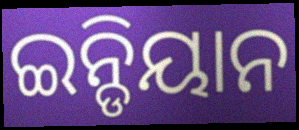
ଇନ୍ଡିୟାନ